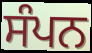
ਸੰਪਨ